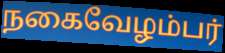
நகைவேழம்பர்